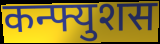
कन्फ्युशस